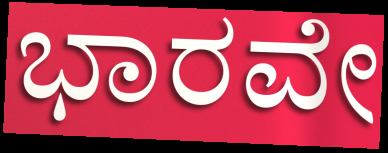
ಭಾರವೇ